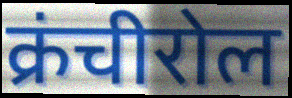
क्रंचीरोल